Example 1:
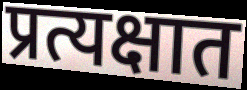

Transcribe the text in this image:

प्रत्यक्षात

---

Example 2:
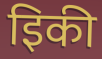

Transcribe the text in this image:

इिकी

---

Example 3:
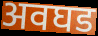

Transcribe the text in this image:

अवघड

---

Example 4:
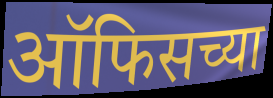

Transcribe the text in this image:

ऑफिसच्या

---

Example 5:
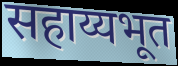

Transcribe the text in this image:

सहाय्यभूत